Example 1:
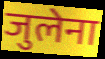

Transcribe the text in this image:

जुलेना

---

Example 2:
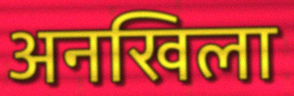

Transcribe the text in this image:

अनखिला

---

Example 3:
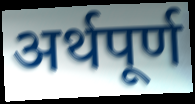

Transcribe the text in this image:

अर्थपूर्ण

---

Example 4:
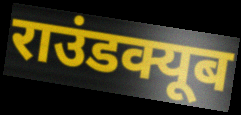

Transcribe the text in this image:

राउंडक्यूब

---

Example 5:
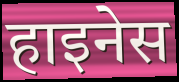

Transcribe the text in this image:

हाइनेस